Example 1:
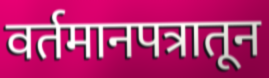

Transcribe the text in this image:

वर्तमानपत्रातून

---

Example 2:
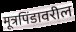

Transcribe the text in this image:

मूत्रपिंडावरील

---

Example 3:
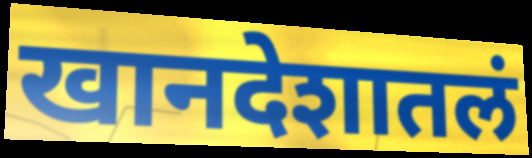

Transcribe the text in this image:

खानदेशातलं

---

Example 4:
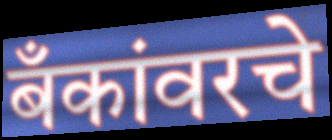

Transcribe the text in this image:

बँकांवरचे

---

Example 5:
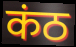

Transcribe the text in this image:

कंठ